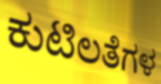
ಕುಟಿಲತೆಗಳ